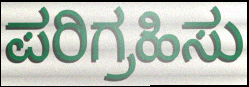
ಪರಿಗ್ರಹಿಸು